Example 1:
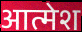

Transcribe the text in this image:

आत्मेश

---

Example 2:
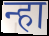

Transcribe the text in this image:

न्हा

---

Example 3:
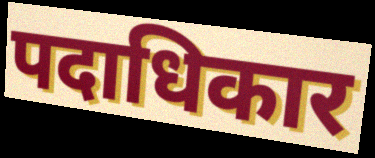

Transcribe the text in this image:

पदाधिकार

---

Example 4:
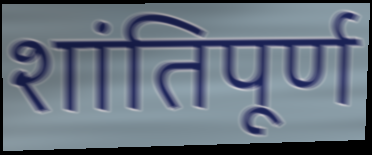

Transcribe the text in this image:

शांतिपूर्ण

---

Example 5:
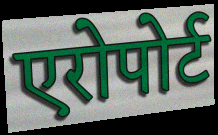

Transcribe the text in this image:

एरोपोर्ट